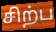
சிற்ப